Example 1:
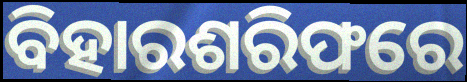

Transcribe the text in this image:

ବିହାରଶରିଫରେ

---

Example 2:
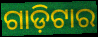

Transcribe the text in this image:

ଗାଡ଼ିଟାର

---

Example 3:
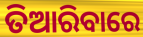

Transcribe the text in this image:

ତିଆରିବାରେ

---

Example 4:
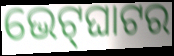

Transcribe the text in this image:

ଭେଟ୍‌ଘାଟର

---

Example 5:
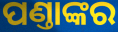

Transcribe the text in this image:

ପଣ୍ତାଙ୍କର